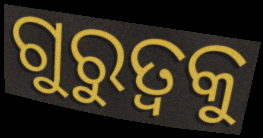
ଗୁରୁତ୍ବକୁ